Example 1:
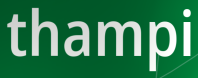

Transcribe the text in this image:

thampi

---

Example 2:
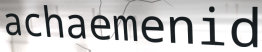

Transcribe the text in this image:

achaemenid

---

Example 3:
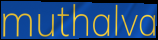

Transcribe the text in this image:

muthalva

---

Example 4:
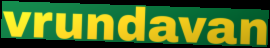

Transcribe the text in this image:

vrundavan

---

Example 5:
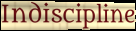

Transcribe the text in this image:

Indiscipline